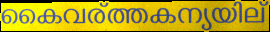
കൈവര്ത്തകന്യയില്